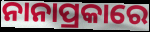
ନାନାପ୍ରକାରେ